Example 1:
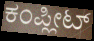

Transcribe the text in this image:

ಕಂಪ್ಲೀಟ್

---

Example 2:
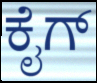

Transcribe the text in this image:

ಕೈಗ್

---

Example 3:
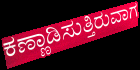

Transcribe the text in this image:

ಕಣ್ಣಾಡಿಸುತ್ತಿರುವಾಗ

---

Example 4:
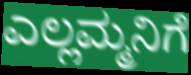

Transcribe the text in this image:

ಎಲ್ಲಮ್ಮನಿಗೆ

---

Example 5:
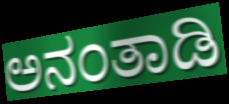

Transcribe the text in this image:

ಅನಂತಾಡಿ